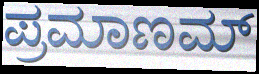
ಪ್ರಮಾಣಮ್